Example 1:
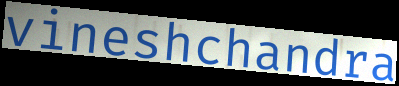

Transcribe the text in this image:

vineshchandra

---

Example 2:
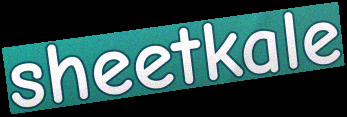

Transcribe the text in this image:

sheetkale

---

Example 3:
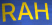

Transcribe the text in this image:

RAH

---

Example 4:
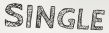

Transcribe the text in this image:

SINGLE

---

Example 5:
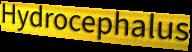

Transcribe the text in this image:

Hydrocephalus